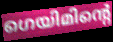
ഗെയിമിന്റെ